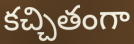
కచ్చితంగా